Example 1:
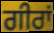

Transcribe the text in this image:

ਗੀਰਾਂ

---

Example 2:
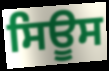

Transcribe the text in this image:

ਸਿਊਸ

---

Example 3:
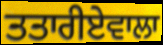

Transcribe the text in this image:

ਤਤਾਰੀਏਵਾਲਾ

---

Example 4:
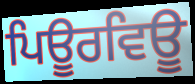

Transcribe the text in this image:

ਪਿਊਰਵਿਊ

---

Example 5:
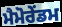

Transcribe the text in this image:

ਮੈਮੋਰੇਂਡਮ